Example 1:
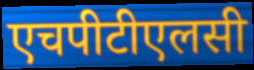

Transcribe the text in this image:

एचपीटीएलसी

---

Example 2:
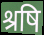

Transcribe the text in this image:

श्रषि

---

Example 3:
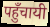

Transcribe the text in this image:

पहुँचायी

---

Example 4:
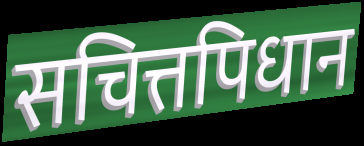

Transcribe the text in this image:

सचित्तपिधान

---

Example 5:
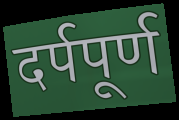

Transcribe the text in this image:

दर्पपूर्ण